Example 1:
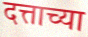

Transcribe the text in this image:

दत्ताच्या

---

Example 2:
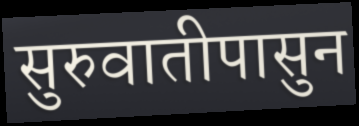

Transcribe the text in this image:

सुरुवातीपासुन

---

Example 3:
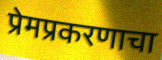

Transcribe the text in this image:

प्रेमप्रकरणाचा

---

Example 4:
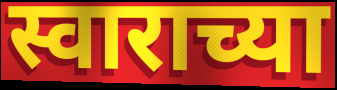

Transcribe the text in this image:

स्वाराच्या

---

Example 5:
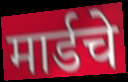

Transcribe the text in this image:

मार्डचे